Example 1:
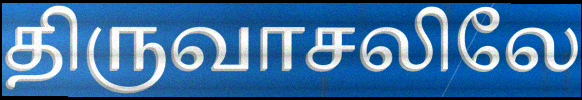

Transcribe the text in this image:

திருவாசலிலே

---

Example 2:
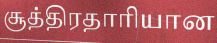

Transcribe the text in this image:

சூத்திரதாரியான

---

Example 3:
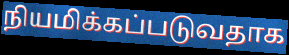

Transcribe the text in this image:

நியமிக்கப்படுவதாக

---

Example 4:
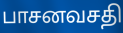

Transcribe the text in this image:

பாசனவசதி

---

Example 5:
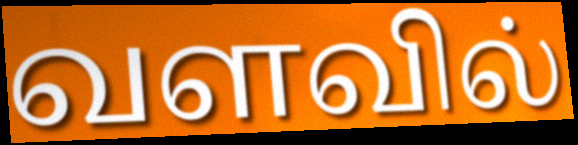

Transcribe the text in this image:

வளவில்